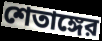
শেতাঙ্গের